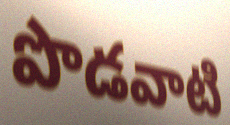
పొడవాటి